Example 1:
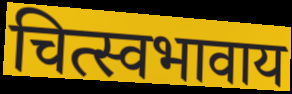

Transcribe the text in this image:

चित्स्वभावाय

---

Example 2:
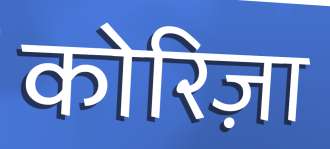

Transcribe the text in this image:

कोरिज़ा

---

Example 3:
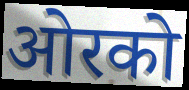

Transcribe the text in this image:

ओरको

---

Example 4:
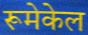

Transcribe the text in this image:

रूमेकेल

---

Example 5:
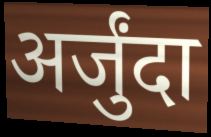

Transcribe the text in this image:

अर्जुंदा